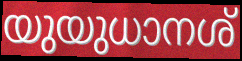
യുയുധാനശ്